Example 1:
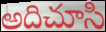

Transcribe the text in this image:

అదిచూసి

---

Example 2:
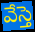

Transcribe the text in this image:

వేస్తె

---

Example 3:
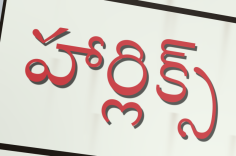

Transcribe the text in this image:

హార్లిక్స్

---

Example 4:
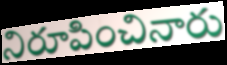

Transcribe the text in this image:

నిరూపించినారు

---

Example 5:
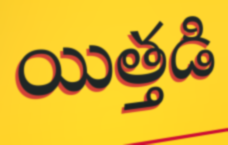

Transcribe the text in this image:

యిత్తడి